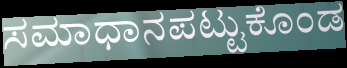
ಸಮಾಧಾನಪಟ್ಟುಕೊಂಡ